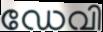
ഡേവി